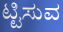
ಟ್ಟಿಸುವ